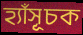
হ্যাঁসূচক